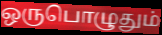
ஒருபொழுதும்